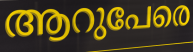
ആറുപേരെ